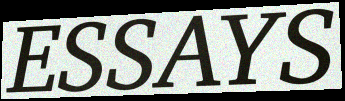
ESSAYS